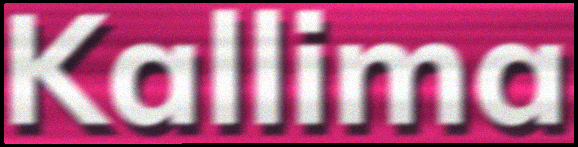
Kallima